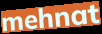
mehnat